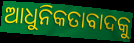
ଆଧୁନିକତାବାଦକୁ